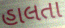
હાલતા